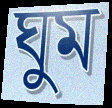
ঘুম